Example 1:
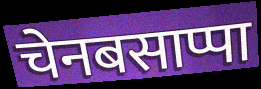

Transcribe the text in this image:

चेनबसाप्पा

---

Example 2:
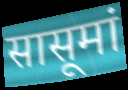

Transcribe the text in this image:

सासूमां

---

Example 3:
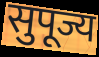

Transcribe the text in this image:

सुपूज्य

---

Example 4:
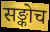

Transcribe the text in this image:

सङ्कोच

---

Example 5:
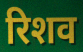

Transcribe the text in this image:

रिशव